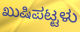
ಖುಷಿಪಟ್ಟಳು